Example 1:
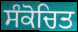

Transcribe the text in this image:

ਸੰਕੋਚਿਤ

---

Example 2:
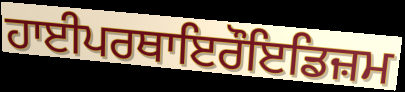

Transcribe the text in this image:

ਹਾਈਪਰਥਾਇਰੌਇਡਿਜ਼ਮ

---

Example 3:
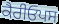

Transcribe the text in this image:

ਕੈਰੀਓਪਸ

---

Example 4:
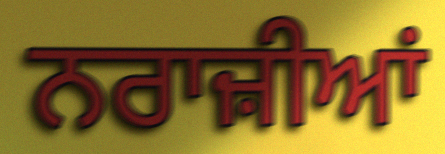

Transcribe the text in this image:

ਨਰਾਜ਼ੀਆਂ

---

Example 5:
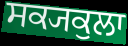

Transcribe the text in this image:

ਸਕ੍ਯਕੁਲਾ